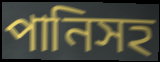
পানিসহ